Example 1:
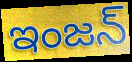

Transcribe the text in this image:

ఇంజన్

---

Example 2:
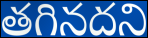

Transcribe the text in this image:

తగినదని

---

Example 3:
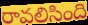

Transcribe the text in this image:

రావలిసింది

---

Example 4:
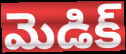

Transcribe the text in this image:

మెడిక్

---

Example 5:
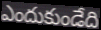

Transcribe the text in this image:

ఎందుకుండేది